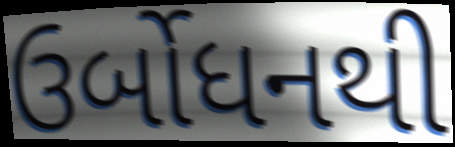
ઉર્બોધનથી